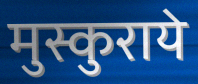
मुस्कुराये